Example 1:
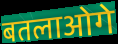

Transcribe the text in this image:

बतलाओगे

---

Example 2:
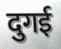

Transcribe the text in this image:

दुगई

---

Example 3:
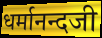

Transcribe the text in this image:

धर्मानन्दजी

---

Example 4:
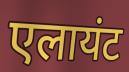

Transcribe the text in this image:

एलायंट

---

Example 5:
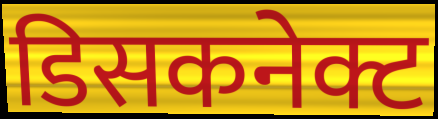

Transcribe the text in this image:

डिसकनेक्ट